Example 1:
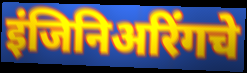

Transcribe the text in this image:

इंजिनिअरिंगचे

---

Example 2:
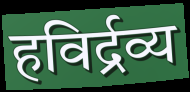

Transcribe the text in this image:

हविर्द्रव्य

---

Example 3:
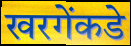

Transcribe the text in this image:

खरगेंकडे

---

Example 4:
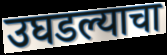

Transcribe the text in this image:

उघडल्याचा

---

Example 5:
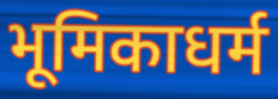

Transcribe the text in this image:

भूमिकाधर्म